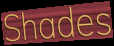
Shades